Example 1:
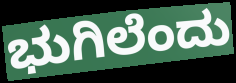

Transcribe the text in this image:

ಭುಗಿಲೆಂದು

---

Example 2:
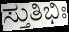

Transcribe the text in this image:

ಸ್ತುತಿಭಿಃ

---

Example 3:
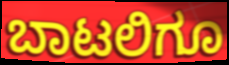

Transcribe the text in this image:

ಬಾಟಲಿಗೂ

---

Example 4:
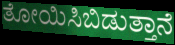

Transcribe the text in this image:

ತೋಯಿಸಿಬಿಡುತ್ತಾನೆ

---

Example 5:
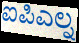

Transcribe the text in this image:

ಐಪಿಎಲ್ನ